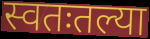
स्वतःतल्या